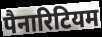
पैनारिटियम